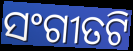
ସଂଗୀତଟି